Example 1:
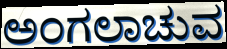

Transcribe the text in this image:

ಅಂಗಲಾಚುವ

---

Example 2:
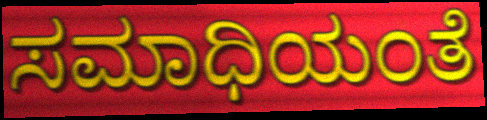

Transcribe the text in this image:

ಸಮಾಧಿಯಂತೆ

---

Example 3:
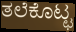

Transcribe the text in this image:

ತಲೆಕೊಟ್ಟ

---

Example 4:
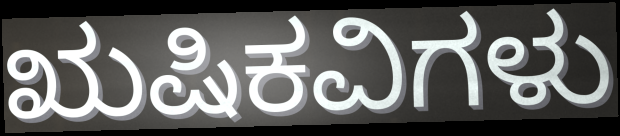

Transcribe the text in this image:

ಋಷಿಕವಿಗಳು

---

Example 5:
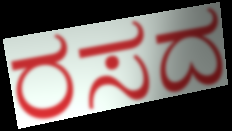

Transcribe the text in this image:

ರಸದ